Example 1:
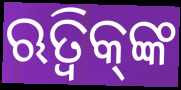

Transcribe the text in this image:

ଋତ୍ୱିକ୍‌ଙ୍କ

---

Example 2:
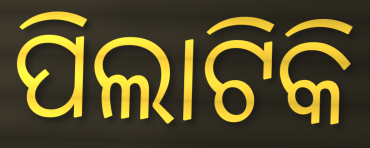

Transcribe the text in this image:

ପିଲାଟିକି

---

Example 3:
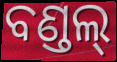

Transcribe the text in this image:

ବଣ୍ଡଲ୍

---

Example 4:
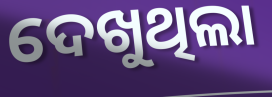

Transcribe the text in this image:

ଦେଖୁଥିଲା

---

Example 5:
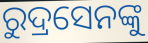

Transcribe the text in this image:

ରୁଦ୍ରସେନଙ୍କୁ